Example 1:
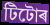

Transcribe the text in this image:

টিটোৰ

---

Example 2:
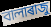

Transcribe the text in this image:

বালাৰাজু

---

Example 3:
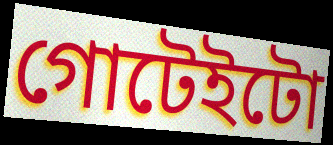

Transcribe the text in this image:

গোটেইটো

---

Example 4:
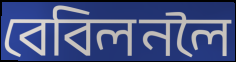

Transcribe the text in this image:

বেবিলনলৈ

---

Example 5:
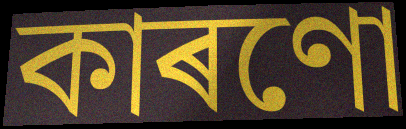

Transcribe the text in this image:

কাৰণো